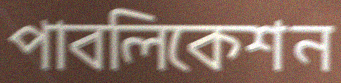
পাবলিকেশন